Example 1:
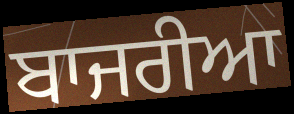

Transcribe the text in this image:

ਬਾਜਰੀਆ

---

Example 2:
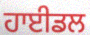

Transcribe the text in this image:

ਹਾਈਡਲ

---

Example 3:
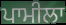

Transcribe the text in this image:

ਪਾਮੀਲਾ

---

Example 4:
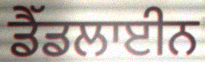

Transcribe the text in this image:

ਡੈੱਡਲਾਈਨ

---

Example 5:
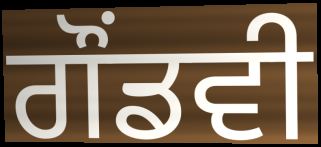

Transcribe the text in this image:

ਗੌਂਡਵੀ